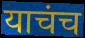
याचंच